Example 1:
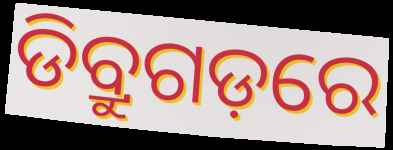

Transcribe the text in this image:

ଡିବ୍ରୁଗଡ଼ରେ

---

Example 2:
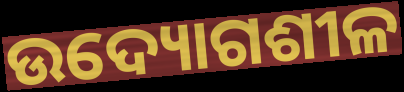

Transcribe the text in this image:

ଉଦ୍ୟୋଗଶୀଳ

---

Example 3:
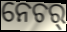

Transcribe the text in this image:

ନେଚର୍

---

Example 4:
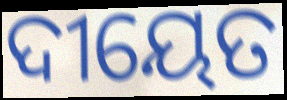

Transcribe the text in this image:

ଦୀୟେତ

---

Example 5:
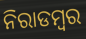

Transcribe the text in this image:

ନିରାଡମ୍ବର